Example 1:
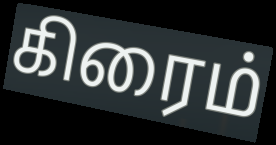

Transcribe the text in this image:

கிரைம்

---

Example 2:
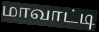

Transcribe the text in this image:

மாவாட்டி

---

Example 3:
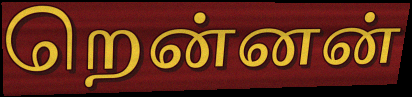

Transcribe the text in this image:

றென்னன்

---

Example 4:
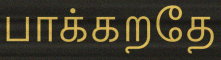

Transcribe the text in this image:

பாக்கறதே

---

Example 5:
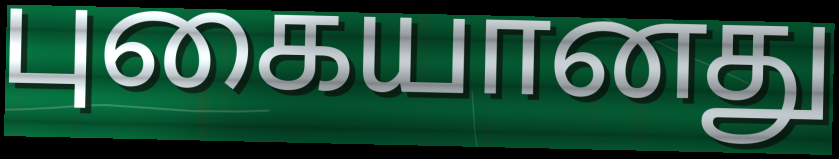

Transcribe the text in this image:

புகையானது